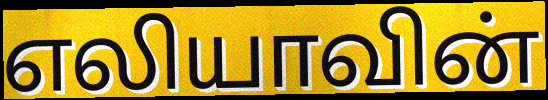
எலியாவின்